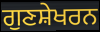
ਗੁਣਸ਼ੇਖਰਨ